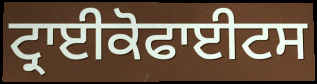
ਟ੍ਰਾਈਕੋਫਾਈਟਸ